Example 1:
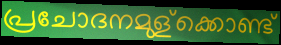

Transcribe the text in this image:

പ്രചോദനമുള്ക്കൊണ്ട്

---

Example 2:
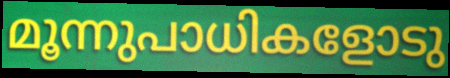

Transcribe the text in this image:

മൂന്നുപാധികളോടു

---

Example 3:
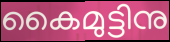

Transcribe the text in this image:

കൈമുട്ടിനു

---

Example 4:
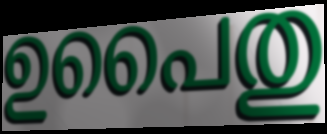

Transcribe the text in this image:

ഉപൈതു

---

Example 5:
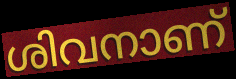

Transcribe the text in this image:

ശിവനാണ്